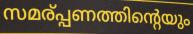
സമര്പ്പണത്തിന്റെയും